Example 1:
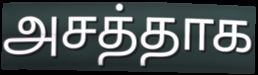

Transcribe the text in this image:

அசத்தாக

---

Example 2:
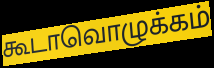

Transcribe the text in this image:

கூடாவொழுக்கம்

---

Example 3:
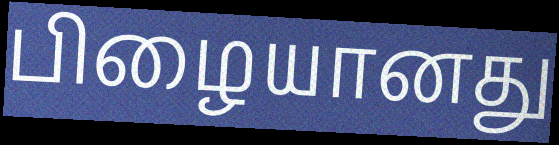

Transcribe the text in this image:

பிழையானது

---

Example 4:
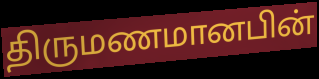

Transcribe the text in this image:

திருமணமானபின்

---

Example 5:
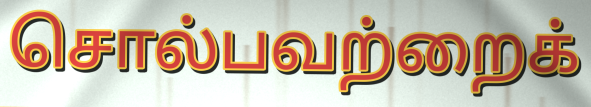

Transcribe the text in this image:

சொல்பவற்றைக்